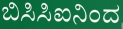
ಬಿಸಿಸಿಐನಿಂದ